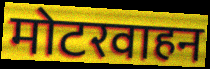
मोटरवाहन